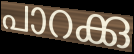
പാറക്കു